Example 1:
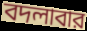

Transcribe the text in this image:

বদলাবার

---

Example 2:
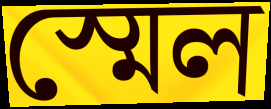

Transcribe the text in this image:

স্মেল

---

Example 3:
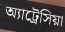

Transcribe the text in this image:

অ্যাট্রেসিয়া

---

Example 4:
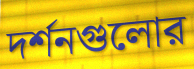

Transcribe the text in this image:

দর্শনগুলোর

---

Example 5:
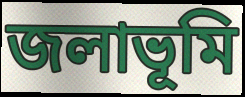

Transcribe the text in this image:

জলাভূমি